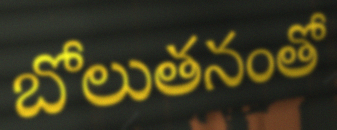
బోలుతనంతో